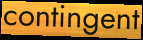
contingent